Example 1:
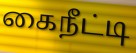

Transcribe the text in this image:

கைநீட்டி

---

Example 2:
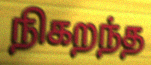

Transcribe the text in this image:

நிகறந்த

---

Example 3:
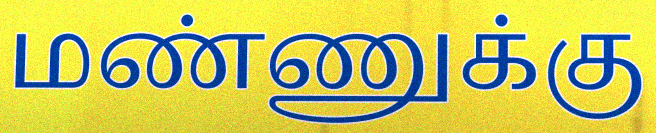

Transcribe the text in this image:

மண்ணுக்கு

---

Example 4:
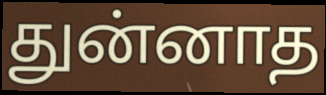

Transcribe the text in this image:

துன்னாத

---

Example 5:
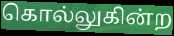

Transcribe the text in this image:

கொல்லுகின்ற